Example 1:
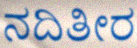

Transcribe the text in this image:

ನದಿತೀರ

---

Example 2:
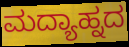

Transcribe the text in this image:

ಮದ್ಯಾಹ್ನದ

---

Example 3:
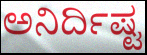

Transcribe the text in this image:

ಅನಿರ್ದಿಷ್ಟ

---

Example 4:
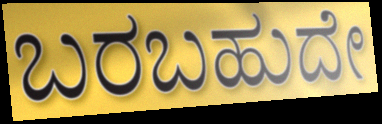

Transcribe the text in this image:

ಬರಬಹುದೇ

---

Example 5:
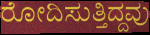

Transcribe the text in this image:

ರೋದಿಸುತ್ತಿದ್ದವು